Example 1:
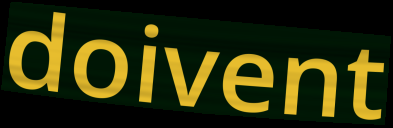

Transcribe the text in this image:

doivent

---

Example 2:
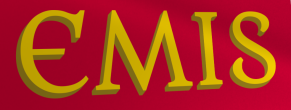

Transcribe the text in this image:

EMIS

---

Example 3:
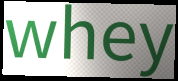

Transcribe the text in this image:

whey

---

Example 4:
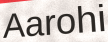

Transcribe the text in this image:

Aarohi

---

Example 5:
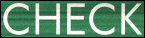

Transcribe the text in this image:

CHECK